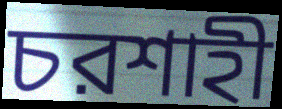
চরশাহী